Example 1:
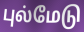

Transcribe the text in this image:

புல்மேடு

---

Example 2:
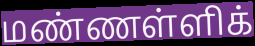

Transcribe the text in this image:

மண்ணள்ளிக்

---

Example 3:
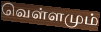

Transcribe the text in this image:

வெள்ளமும்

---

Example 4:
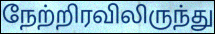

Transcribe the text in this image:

நேற்றிரவிலிருந்து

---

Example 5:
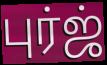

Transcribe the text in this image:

புர்ஜ்